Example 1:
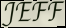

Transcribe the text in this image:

JEFF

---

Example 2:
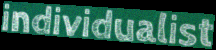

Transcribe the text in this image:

individualist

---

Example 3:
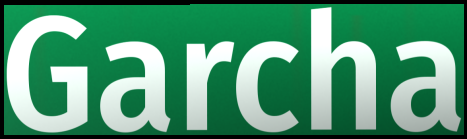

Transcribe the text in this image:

Garcha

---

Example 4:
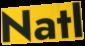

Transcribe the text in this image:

Natl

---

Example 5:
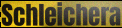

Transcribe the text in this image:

Schleichera